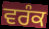
ਵਰੰਕ